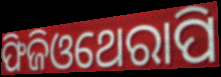
ଫିଜିଓଥେରାପି